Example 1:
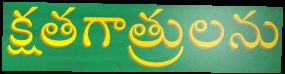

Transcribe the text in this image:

క్షతగాత్రులను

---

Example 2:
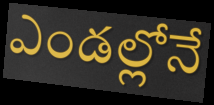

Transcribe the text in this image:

ఎండల్లోనే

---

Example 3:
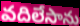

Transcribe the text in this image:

వదిలేసాను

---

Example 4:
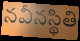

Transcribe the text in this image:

నవీనస్థితి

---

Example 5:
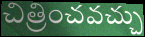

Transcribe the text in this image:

చిత్రించవచ్చు